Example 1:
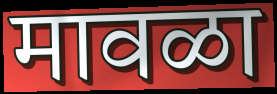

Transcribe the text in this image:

मावळा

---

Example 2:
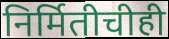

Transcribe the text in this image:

निर्मितीचीही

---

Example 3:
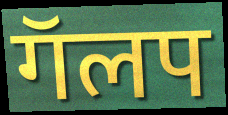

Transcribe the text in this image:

गॅलप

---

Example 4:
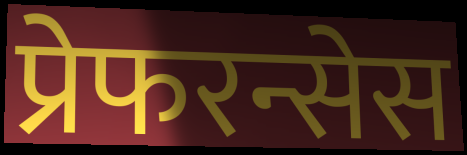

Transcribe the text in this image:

प्रेफरन्सेस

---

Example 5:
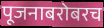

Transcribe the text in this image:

पूजनाबरोबरच